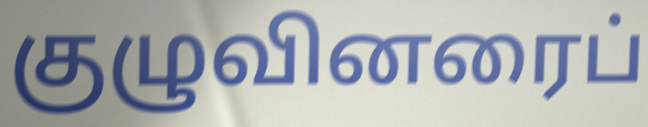
குழுவினரைப்